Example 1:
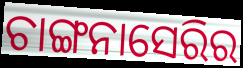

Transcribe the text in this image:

ଚାଙ୍ଗନାସେରିର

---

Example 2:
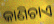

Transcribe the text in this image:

କାଣିଚାଏ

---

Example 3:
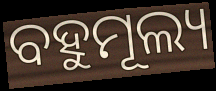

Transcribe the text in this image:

ବହୁମୂଲ୍ୟ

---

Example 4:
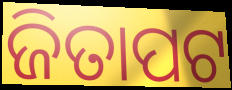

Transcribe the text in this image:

ଜିତାପଟ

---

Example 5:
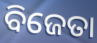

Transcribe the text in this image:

ବିଜେତା